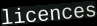
licences